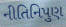
નીતિનિપુણ